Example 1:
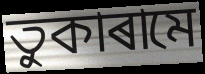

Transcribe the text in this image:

তুকাৰামে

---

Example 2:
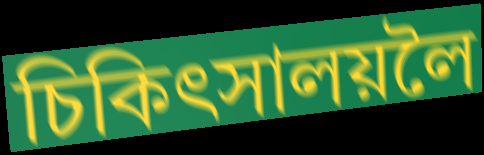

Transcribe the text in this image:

চিকিৎসালয়লৈ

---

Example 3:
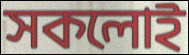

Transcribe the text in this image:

সকলোই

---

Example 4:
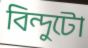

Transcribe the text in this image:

বিন্দুটো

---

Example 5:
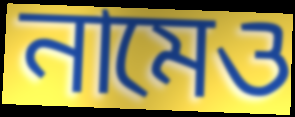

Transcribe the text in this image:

নামেও